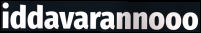
iddavarannooo